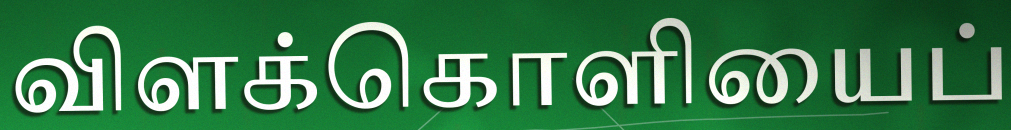
விளக்கொளியைப்